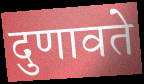
दुणावते